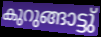
കുറുങ്ങാട്ടു്